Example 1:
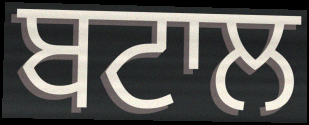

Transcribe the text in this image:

ਬਟਾਲ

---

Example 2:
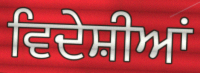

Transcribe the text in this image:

ਵਿਦੇਸ਼ੀਆਂ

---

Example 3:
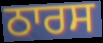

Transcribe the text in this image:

ਠਾਰਸ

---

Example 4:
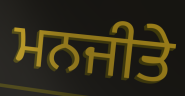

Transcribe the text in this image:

ਮਨਜੀਤੇ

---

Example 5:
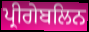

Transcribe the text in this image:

ਪ੍ਰੀਗੇਬਲਿਨ